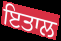
ਇਤਾਲ